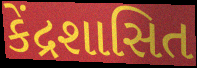
કેંદ્રશાસિત